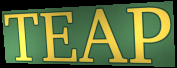
TEAP